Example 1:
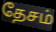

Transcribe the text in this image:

தேசம்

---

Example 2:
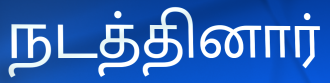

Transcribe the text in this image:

நடத்தினார்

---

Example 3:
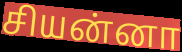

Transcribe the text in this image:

சியன்னா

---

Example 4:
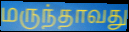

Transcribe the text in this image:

மருந்தாவது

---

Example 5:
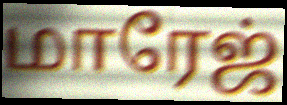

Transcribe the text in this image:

மாரேஜ்